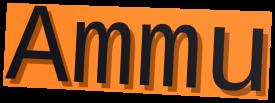
Ammu